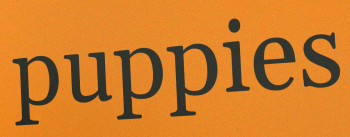
puppies